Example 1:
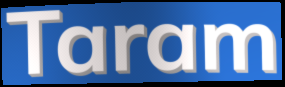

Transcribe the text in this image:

Taram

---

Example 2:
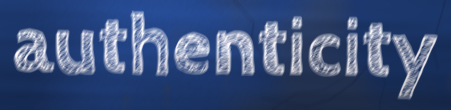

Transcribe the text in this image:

authenticity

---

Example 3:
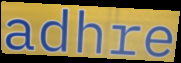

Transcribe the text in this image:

adhre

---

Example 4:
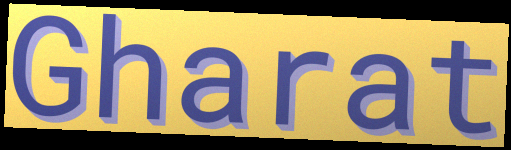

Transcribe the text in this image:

Gharat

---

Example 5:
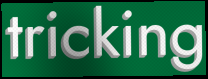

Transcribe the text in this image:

tricking